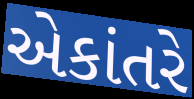
એકાંતરે